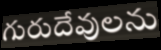
గురుదేవులను